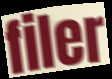
filer